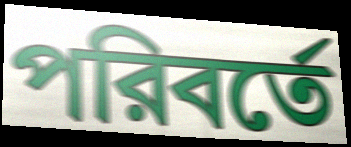
পরিবর্তে